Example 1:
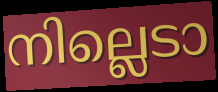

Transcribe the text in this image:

നില്ലെടാ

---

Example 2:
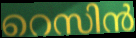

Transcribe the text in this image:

റെസിൻ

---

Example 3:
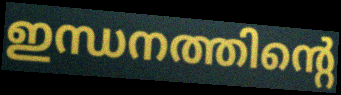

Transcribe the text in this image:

ഇന്ധനത്തിന്റെ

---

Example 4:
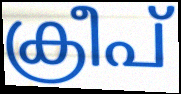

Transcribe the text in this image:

ക്രീപ്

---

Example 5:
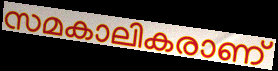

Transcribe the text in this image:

സമകാലികരാണ്